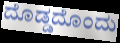
ದೊಡ್ಡದೊಂದು